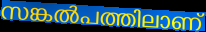
സങ്കൽപത്തിലാണ്